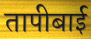
तापीबाई